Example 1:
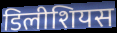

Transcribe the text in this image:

डिलीशियस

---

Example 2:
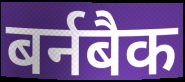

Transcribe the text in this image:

बर्नबैक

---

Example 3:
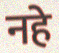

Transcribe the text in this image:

नहे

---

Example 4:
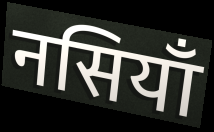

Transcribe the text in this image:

नसियाँ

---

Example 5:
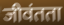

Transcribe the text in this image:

जीवंतता